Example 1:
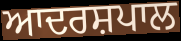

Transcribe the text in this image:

ਆਦਰਸ਼ਪਾਲ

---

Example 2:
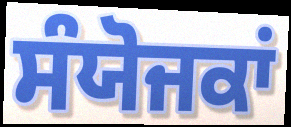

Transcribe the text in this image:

ਸੰਯੋਜਕਾਂ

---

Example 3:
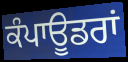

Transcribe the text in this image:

ਕੰਪਾਊਡਰਾਂ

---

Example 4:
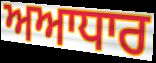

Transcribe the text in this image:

ਅਆਧਾਰ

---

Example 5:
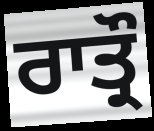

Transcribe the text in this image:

ਰਾਤ੍ਰੌ